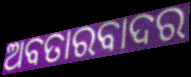
ଅବତାରବାଦର